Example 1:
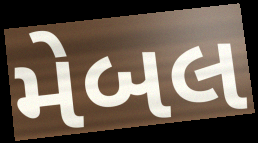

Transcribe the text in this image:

મેબલ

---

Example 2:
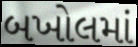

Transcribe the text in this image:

બખોલમાં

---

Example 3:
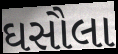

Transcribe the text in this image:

ઘસૌલા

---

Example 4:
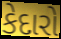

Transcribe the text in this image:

કેદારો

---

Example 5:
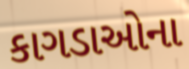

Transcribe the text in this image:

કાગડાઓના